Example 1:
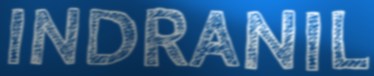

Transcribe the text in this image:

INDRANIL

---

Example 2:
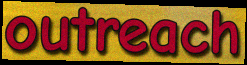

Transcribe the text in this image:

outreach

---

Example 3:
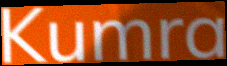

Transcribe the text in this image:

Kumra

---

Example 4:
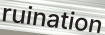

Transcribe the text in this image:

ruination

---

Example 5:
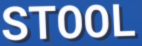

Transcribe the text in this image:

STOOL